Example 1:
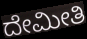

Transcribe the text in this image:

ದೇಮೀತಿ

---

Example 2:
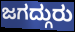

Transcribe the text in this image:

ಜಗದ್ಗುರು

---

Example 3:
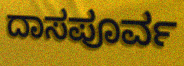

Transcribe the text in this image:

ದಾಸಪೂರ್ವ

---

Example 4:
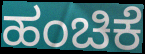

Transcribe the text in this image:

ಹಂಚಿಕೆ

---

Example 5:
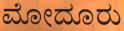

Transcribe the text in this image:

ಮೋದೂರು